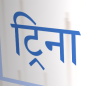
ट्रिना